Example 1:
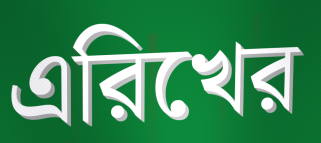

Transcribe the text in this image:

এরিখের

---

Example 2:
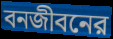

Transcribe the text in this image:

বনজীবনের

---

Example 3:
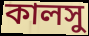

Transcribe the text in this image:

কালসু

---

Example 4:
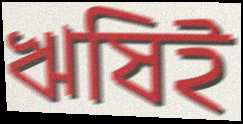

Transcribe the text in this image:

ঋষিই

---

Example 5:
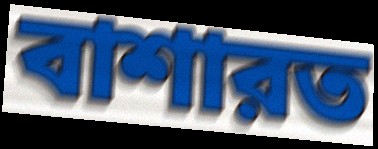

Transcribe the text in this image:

বাশারত